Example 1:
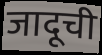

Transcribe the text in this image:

जादूची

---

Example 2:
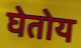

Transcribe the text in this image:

घेतोय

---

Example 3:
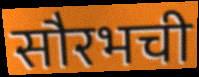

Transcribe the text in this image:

सौरभची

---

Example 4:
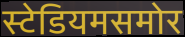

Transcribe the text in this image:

स्टेडियमसमोर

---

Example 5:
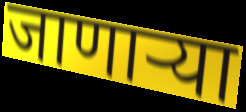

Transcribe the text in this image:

जाणाऱ्या